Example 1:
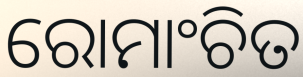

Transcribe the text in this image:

ରୋମାଂଚିତ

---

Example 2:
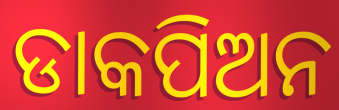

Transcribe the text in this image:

ଡାକପିଅନ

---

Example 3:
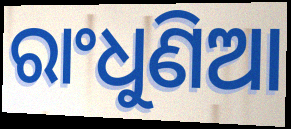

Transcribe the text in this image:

ରାଂଧୁଣିଆ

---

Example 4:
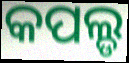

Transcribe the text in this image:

କପଲ୍ଡ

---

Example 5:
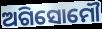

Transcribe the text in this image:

ଅଗିସୋମୌ